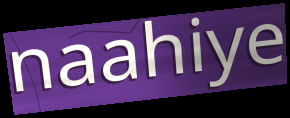
naahiye